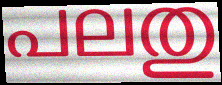
പലതു